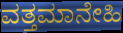
ವತ್ತಮಾನೇಹಿ